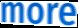
more